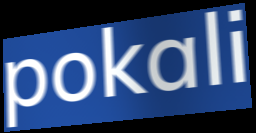
pokali